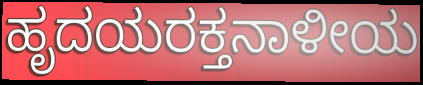
ಹೃದಯರಕ್ತನಾಳೀಯ